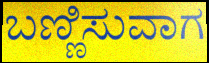
ಬಣ್ಣಿಸುವಾಗ